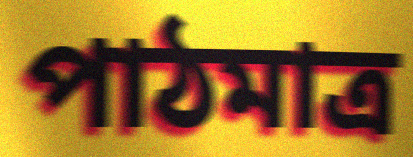
পাঠমাত্র